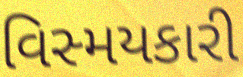
વિસ્મયકારી